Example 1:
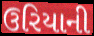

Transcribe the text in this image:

ઉરિયાની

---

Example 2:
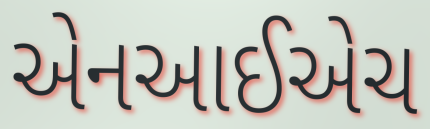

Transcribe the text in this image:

એનઆઈએચ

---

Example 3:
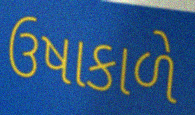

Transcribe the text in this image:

ઉષાકાળે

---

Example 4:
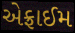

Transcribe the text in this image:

એફ્રાઈમ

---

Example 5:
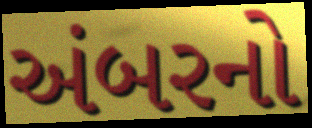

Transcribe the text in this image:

અંબરનો